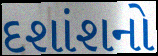
દશાંશનો